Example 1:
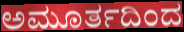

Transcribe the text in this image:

ಅಮೂರ್ತದಿಂದ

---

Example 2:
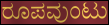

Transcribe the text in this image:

ರೂಪವುಂಟು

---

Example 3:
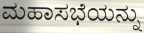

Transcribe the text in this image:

ಮಹಾಸಭೆಯನ್ನು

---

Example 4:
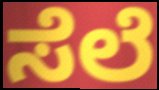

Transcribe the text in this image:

ಸೆಲೆ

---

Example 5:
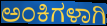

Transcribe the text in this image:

ಅಂಕಿಗಳಾಗಿ